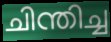
ചിന്തിച്ച